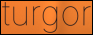
turgor